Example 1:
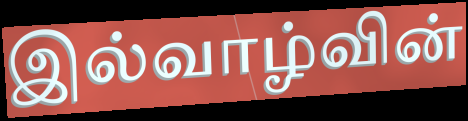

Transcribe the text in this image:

இல்வாழ்வின்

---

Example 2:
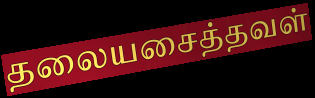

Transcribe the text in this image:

தலையசைத்தவள்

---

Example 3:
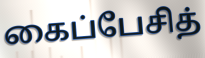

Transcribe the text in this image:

கைப்பேசித்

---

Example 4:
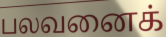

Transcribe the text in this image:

பலவனைக்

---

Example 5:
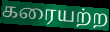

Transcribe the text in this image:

கரையற்ற